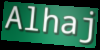
Alhaj